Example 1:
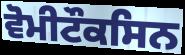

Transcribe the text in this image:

ਵੋਮੀਟੌਕਸਿਨ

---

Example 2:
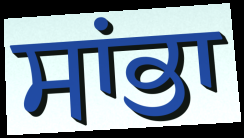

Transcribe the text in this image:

ਸਾਂਭਾ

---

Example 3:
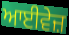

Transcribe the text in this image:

ਆਈਵੇਜ਼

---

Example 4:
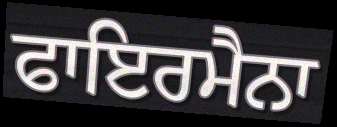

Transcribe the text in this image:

ਫਾਇਰਮੈਨਾ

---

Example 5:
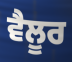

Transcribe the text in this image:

ਵੈਲੂਰ